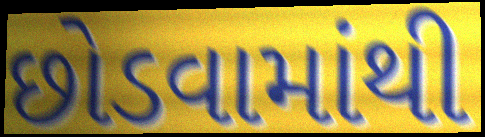
છોડવામાંથી